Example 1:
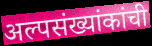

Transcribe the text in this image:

अल्पसंख्यांकांची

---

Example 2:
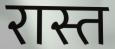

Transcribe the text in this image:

रास्त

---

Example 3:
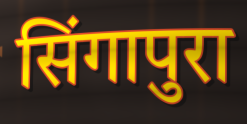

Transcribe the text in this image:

सिंगापुरा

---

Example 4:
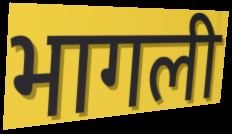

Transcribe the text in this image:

भागली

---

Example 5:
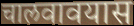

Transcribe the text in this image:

चालवावयास